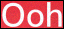
Ooh